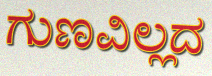
ಗುಣವಿಲ್ಲದ